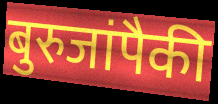
बुरुजांपैकी